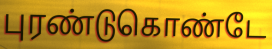
புரண்டுகொண்டே